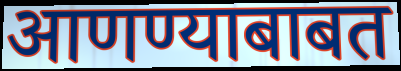
आणण्याबाबत